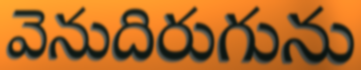
వెనుదిరుగును